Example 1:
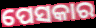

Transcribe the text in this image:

ପେସକାର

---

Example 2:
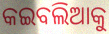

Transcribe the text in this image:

କଇବଲିଆକୁ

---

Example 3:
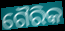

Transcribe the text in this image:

ଗୈରିକ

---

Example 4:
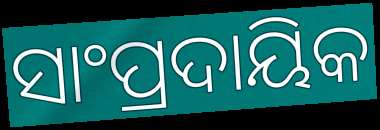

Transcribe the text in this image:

ସାଂପ୍ରଦାୟିକ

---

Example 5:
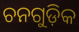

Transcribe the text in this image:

ଚନଗୁଡ଼ିକ